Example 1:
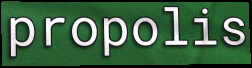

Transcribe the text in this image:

propolis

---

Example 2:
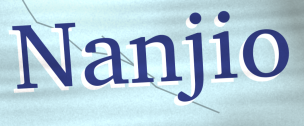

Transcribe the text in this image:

Nanjio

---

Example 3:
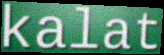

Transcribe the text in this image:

kalat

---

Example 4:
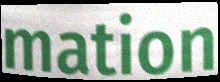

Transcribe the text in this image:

mation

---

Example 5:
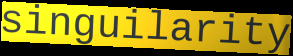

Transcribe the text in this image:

singuilarity